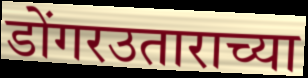
डोंगरउताराच्या